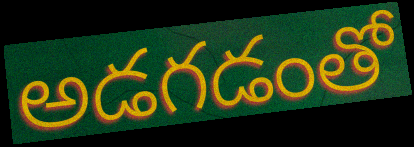
అడగడంతో